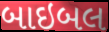
બાઇબલ